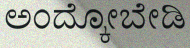
ಅಂದ್ಕೋಬೇಡಿ